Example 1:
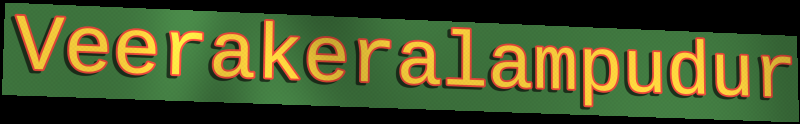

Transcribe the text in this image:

Veerakeralampudur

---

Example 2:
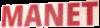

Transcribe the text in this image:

MANET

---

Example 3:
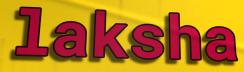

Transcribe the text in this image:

laksha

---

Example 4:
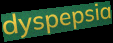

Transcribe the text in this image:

dyspepsia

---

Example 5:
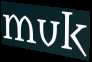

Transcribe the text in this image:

muk